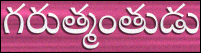
గరుత్మంతుడు